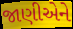
જાણીએને